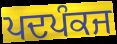
ਪਦਪੰਕਜ